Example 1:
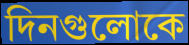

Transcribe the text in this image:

দিনগুলোকে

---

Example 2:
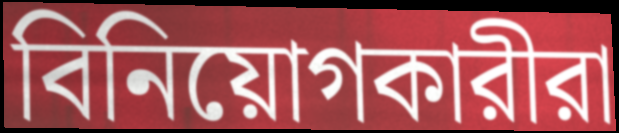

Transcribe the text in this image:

বিনিয়োগকারীরা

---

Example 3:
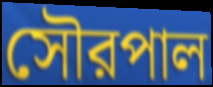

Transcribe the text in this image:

সৌরপাল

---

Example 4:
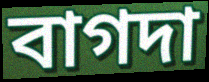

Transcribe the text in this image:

বাগদা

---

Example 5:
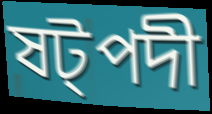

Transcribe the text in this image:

ষট্‌পদী